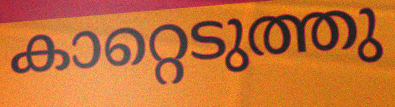
കാറ്റെടുത്തു